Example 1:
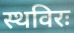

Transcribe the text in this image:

स्थविरः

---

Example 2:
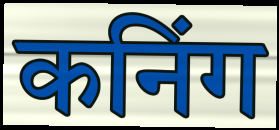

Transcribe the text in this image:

कनिंग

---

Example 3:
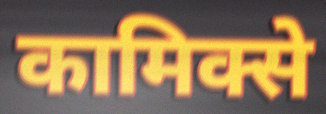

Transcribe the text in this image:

कामिक्से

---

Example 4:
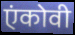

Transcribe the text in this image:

एंकोवी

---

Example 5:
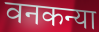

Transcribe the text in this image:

वनकन्या